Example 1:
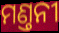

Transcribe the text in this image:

ମଣ୍ତନୀ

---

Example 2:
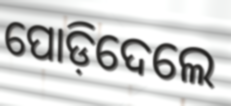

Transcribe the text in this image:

ପୋଡ଼ିଦେଲେ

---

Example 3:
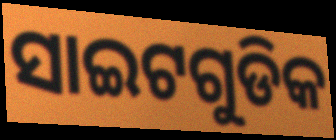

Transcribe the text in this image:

ସାଇଟଗୁଡିକ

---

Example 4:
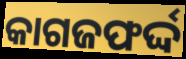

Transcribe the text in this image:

କାଗଜଫର୍ଦ୍ଦ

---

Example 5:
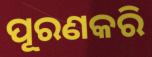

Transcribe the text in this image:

ପୂରଣକରି